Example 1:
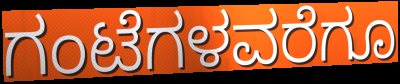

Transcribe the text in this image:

ಗಂಟೆಗಳವರೆಗೂ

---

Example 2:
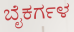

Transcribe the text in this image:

ಬೈಕರ್ಗಳ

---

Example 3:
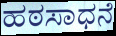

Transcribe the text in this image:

ಹಠಸಾಧನೆ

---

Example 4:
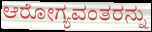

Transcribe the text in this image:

ಆರೋಗ್ಯವಂತರನ್ನು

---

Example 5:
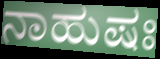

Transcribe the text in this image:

ನಾಹುಷಃ